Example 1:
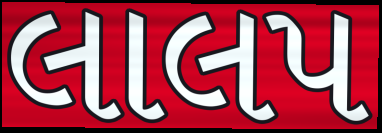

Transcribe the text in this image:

લાલપ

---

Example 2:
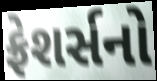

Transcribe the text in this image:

ફ્રેશર્સનો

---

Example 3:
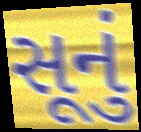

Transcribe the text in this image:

સૂનું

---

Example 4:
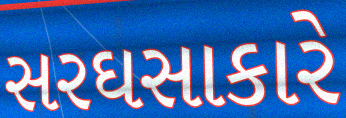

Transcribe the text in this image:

સરઘસાકારે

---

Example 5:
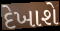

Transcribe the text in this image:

દેખાશે